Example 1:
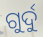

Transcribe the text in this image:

ଗୁର୍ଦୁ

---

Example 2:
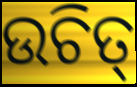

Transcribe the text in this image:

ଉଚିତ୍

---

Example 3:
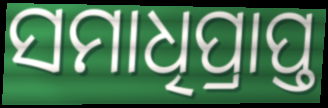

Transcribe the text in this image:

ସମାଧିପ୍ରାପ୍ତ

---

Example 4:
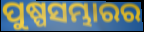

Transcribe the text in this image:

ପୁଷ୍ପସମ୍ଭାରର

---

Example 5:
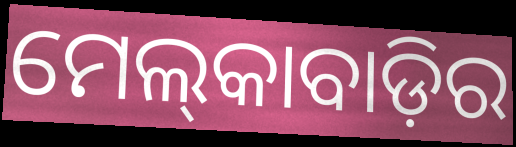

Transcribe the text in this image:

ମେଲ୍‍କାବାଡ଼ିର